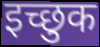
इच्छुक